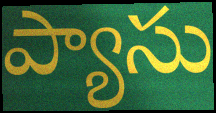
ప్యాసు